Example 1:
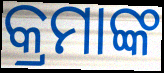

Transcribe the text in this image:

କ୍ରମାଙ୍କ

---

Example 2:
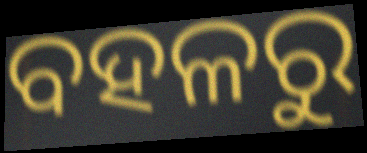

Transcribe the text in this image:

ବହଳରୁ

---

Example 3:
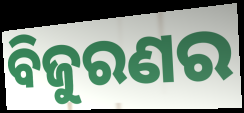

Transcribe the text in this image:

ବିଜୁରଣର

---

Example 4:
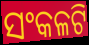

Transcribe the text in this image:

ସଂକଳଟି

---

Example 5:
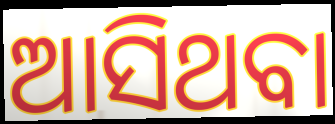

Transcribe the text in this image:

ଆସିଥବା